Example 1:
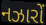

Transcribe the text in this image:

નઝારોં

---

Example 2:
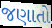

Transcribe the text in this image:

જણાતો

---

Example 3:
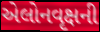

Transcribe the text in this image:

એલોનવૃક્ષની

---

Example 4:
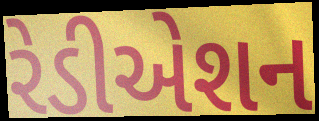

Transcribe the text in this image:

રેડીએશન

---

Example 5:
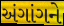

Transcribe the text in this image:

અંગાંગને